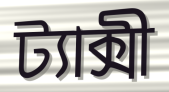
ট্যাক্সী